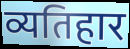
व्यतिहार